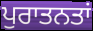
ਪੁਰਾਤਨਤਾਂ